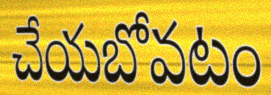
చేయబోవటం